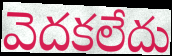
వెదకలేదు